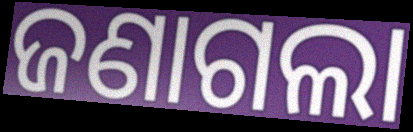
ଜଣାଗଲା